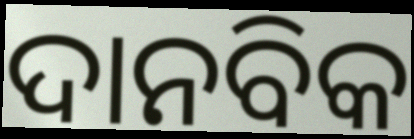
ଦାନବିକ